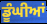
ਡੂੰਘੀਆਂ